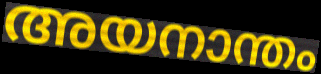
അയനാന്തം